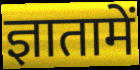
ज्ञातामें